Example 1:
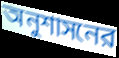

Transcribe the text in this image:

অনুশাসনের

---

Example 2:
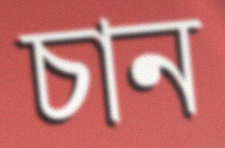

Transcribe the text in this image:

চান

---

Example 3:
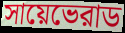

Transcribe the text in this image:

সায়েভেরাড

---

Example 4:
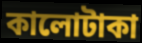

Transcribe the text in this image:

কালোটাকা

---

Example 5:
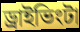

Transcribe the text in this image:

ড্রাইভিংটা